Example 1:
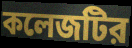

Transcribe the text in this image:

কলেজটির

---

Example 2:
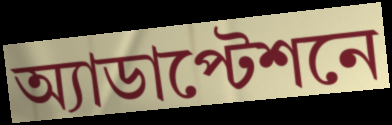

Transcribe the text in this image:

অ্যাডাপ্টেশনে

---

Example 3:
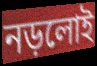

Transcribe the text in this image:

নড়লোই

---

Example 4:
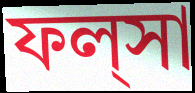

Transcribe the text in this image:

ফল্‌সা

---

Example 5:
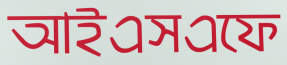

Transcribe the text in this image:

আইএসএফে